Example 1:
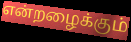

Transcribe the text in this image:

என்றழைக்கும்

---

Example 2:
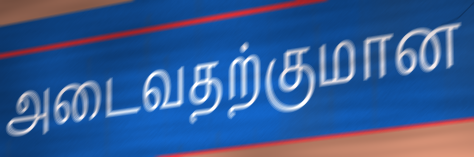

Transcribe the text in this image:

அடைவதற்குமான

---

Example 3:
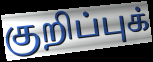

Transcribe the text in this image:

குறிப்புக்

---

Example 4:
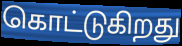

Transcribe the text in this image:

கொட்டுகிறது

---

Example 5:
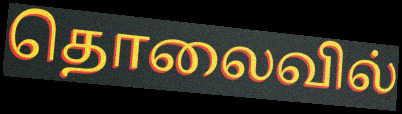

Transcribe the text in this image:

தொலைவில்